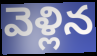
వెళ్లిన